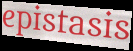
epistasis